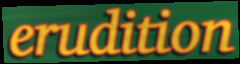
erudition